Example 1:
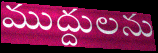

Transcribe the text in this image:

ముద్దులను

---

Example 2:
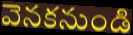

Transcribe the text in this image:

వెనకనుండి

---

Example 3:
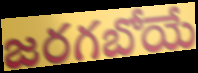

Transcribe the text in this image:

జరగబోయే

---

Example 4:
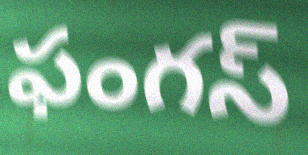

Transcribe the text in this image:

ఫంగస్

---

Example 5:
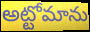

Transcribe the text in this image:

అట్టోమాను